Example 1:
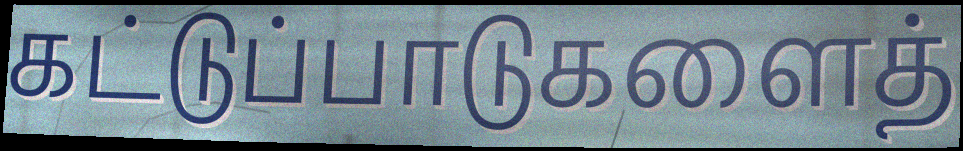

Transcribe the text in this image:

கட்டுப்பாடுகளைத்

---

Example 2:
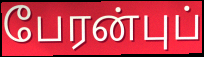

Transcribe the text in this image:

பேரன்புப்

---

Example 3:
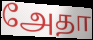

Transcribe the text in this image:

அேதா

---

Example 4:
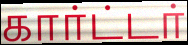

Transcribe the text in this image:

கார்ட்டர்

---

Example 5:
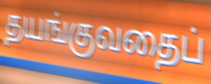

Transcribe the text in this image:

தயங்குவதைப்